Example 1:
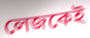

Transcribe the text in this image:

লেজকেই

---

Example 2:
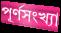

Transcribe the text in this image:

পূর্ণসংখ্যা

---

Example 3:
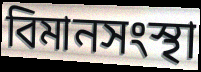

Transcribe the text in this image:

বিমানসংস্থা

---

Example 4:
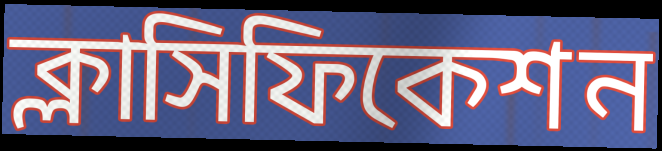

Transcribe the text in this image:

ক্লাসিফিকেশন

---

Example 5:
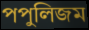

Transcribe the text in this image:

পপুলিজম